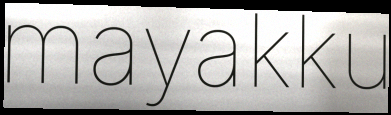
mayakku